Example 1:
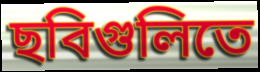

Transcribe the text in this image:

ছবিগুলিতে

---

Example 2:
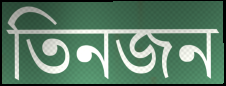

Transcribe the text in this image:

তিনজন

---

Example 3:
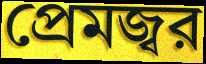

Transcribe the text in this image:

প্রেমজ্বর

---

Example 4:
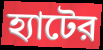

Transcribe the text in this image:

হ্যাটের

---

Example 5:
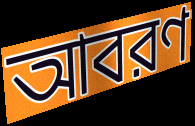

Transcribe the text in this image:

আবরণ